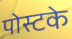
पोस्टके